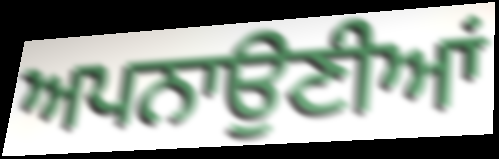
ਅਪਨਾਉਣੀਆਂ